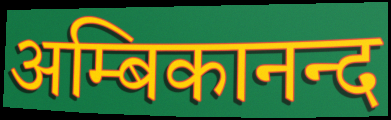
अम्बिकानन्द